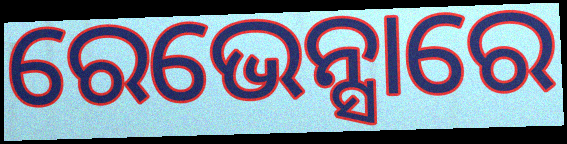
ରେଭେନ୍ସାରେ